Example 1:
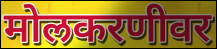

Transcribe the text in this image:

मोलकरणीवर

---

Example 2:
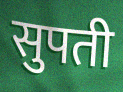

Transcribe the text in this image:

सुपती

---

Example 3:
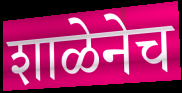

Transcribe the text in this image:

शाळेनेच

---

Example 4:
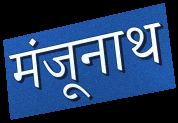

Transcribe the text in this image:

मंजूनाथ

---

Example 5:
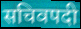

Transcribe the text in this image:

सचिवपदी